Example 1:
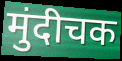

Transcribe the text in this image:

मुंदीचक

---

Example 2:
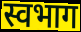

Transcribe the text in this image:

स्वभाग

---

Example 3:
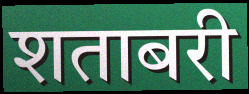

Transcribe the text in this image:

शताबरी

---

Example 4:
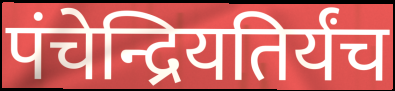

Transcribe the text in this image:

पंचेन्द्रियतिर्यंच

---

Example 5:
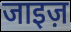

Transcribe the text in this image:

जाइज़